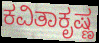
ಕವಿತಾಕೃಷ್ಣ